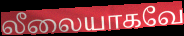
லீலையாகவே